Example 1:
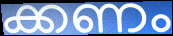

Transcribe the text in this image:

ക്കണം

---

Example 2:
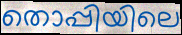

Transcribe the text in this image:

തൊപ്പിയിലെ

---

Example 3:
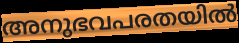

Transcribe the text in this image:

അനുഭവപരതയിൽ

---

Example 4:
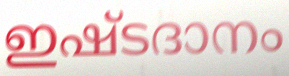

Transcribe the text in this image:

ഇഷ്ടദാനം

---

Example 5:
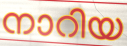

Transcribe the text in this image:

നാറിയ